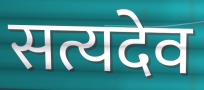
सत्यदेव